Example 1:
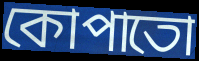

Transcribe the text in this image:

কোপাতো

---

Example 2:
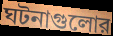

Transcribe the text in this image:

ঘটনাগুলোর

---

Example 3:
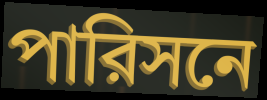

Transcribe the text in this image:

পারিসনে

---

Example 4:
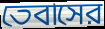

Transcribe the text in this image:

তেবাসের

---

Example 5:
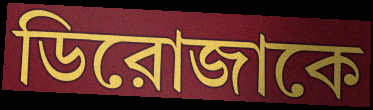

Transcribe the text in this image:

ডিরোজাকে